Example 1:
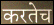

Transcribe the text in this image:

करतेच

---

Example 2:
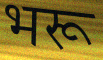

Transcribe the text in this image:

भरू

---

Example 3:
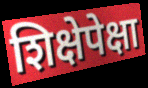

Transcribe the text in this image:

शिक्षेपेक्षा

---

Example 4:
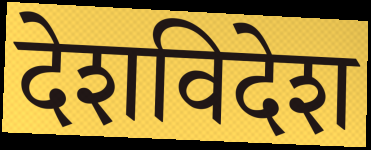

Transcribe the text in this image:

देशविदेश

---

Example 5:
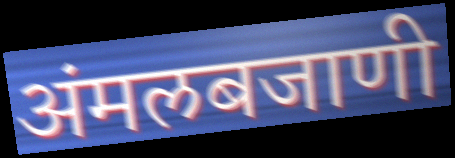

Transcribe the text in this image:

अंमलबजाणी